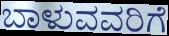
ಬಾಳುವವರಿಗೆ